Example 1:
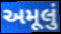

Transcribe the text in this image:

અમૂલું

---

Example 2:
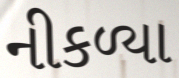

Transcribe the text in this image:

નીકળ્યા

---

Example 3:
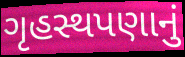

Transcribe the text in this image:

ગૃહસ્થપણાનું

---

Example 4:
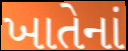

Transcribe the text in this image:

ખાતેનાં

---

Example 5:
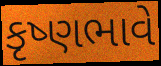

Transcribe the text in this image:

કૃષ્ણભાવે